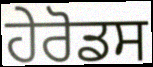
ਹੇਰੋਡਸ